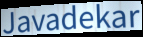
Javadekar